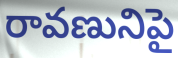
రావణునిపై